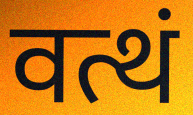
वत्थं